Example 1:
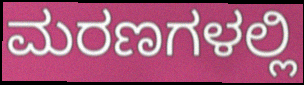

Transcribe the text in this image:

ಮರಣಗಳಲ್ಲಿ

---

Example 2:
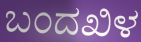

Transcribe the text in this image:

ಬಂದಖಿಳ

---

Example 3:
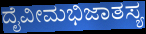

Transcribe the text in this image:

ದೈವೀಮಭಿಜಾತಸ್ಯ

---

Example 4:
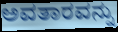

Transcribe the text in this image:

ಅವತಾರವನ್ನು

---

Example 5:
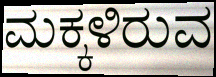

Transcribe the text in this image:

ಮಕ್ಕಳಿರುವ